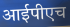
आईपीएच